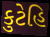
કુટેહિ